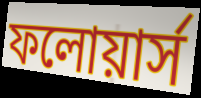
ফলোয়ার্স